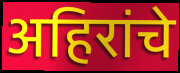
अहिरांचे